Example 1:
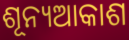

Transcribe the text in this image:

ଶୂନ୍ୟଆକାଶ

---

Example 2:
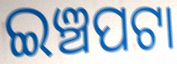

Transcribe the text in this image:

ଇଞ୍ଚପଟା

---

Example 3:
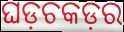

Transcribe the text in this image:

ଘଡ଼ଚକଡ଼ର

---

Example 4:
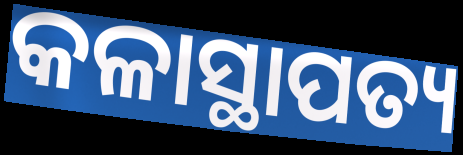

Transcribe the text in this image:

କଳାସ୍ଥାପତ୍ୟ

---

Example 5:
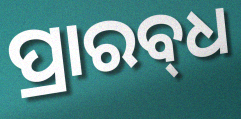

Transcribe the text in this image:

ପ୍ରାରବ୍‍ଧ